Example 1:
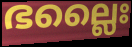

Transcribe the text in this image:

ഭല്ലൈഃ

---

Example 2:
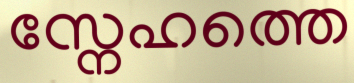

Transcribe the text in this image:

സ്നേഹത്തെ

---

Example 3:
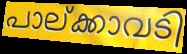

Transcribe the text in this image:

പാല്ക്കാവടി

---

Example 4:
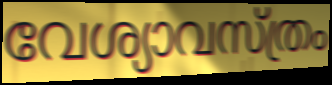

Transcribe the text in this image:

വേശ്യാവസ്ത്രം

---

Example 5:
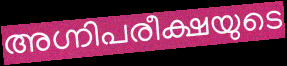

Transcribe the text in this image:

അഗ്നിപരീക്ഷയുടെ